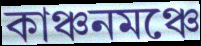
কাঞ্চনমঞ্চে